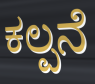
ಕಲ್ಪನೆ